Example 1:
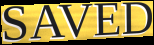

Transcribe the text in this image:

SAVED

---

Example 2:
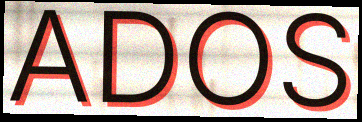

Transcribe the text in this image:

ADOS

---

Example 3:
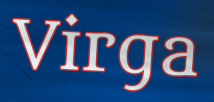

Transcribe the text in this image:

Virga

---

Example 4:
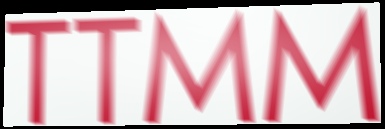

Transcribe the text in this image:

TTMM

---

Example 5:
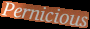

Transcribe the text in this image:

Pernicious